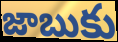
జాబుకు